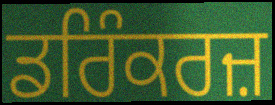
ਡਰਿੰਕਰਜ਼